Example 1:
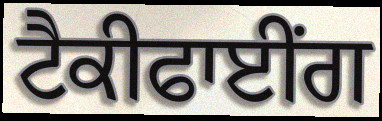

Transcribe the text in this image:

ਟੈਕੀਫਾਈਂਗ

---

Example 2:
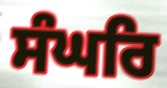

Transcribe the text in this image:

ਸੰਘਰਿ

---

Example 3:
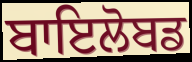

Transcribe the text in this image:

ਬਾਇਲੋਬਡ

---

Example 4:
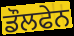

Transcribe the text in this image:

ਡੌਲਫੇਨ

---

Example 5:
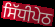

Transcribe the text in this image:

ਸਿੱਧੀਪੇਠ